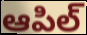
ఆపిల్